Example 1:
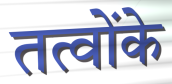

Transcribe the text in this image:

तत्वोंके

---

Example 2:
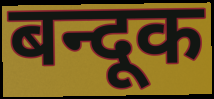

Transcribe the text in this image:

बन्दूक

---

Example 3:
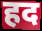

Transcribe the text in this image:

हद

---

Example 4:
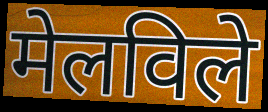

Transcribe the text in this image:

मेलविले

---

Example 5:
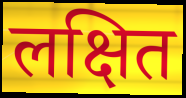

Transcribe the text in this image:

लक्षित